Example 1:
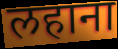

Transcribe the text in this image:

लहाना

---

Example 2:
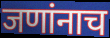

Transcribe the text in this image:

जणांनाच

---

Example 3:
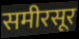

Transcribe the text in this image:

समीरसूर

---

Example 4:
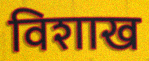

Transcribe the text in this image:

विशाख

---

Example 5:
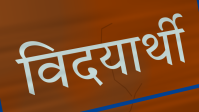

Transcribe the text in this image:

विदयार्थी